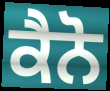
ਕੈਨੋ